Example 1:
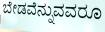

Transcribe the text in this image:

ಬೇಡವೆನ್ನುವವರೂ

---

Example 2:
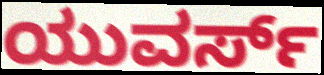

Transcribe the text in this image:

ಯುವರ್ಸ್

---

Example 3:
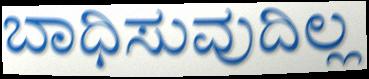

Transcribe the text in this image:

ಬಾಧಿಸುವುದಿಲ್ಲ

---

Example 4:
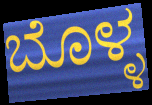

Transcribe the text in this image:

ಬೊಳ್ಳ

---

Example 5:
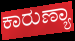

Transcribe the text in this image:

ಕಾರುಣ್ಯಾ